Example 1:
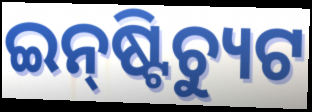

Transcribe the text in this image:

ଇନ୍‍ଷ୍ଟିଚ୍ୟୁଟ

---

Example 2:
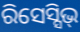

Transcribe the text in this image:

ରିସେସ୍ସିଭ୍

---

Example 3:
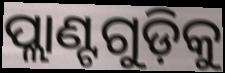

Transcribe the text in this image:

ପ୍ଲାଣ୍ଟଗୁଡ଼ିକୁ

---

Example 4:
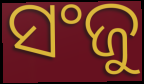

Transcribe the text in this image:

ସଂଜୁ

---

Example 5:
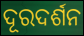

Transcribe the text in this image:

ଦୂରଦର୍ଶନ